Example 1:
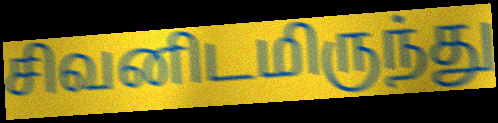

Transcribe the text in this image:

சிவனிடமிருந்து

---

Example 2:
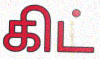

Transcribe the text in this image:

கிட்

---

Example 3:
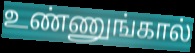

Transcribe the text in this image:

உண்ணுங்கால்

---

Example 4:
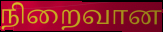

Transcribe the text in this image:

நிறைவான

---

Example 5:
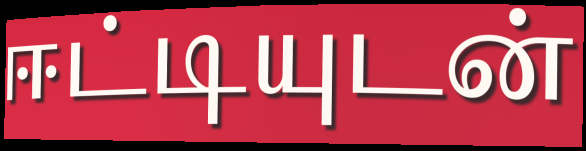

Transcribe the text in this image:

ஈட்டியுடன்